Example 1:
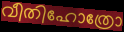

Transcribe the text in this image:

വീതിഹോത്രോ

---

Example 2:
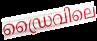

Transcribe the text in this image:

ഡ്രൈവിലെ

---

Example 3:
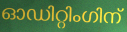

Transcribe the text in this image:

ഓഡിറ്റിംഗിന്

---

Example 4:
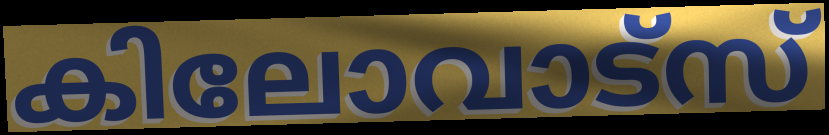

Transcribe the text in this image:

കിലോവാട്സ്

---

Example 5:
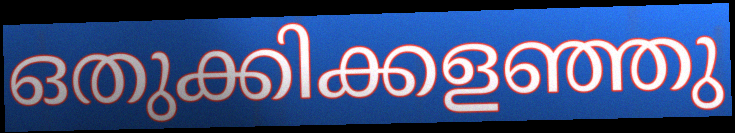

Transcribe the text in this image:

ഒതുക്കിക്കളഞ്ഞു